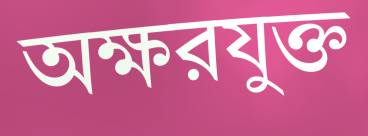
অক্ষরযুক্ত